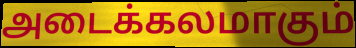
அடைக்கலமாகும்